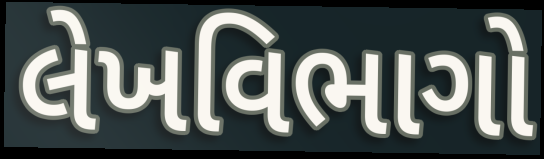
લેખવિભાગો